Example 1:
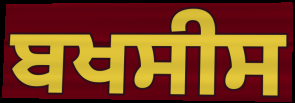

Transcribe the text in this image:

ਬਖਸੀਸ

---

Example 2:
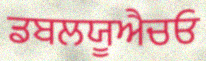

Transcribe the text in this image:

ਡਬਲਯੂਐਚਓ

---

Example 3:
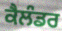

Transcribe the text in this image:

ਕੈਲੰਡਰ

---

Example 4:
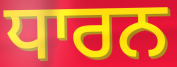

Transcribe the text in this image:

ਧਾਰਨ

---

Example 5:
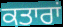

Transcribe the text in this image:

ਕਤਾਰਾਂ